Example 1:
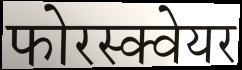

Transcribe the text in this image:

फोरस्क्वेयर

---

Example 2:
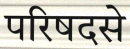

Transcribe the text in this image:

परिषदसे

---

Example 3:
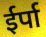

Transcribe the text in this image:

ईर्पा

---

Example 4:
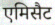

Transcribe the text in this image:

एमिसैट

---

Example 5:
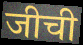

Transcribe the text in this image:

जीची